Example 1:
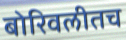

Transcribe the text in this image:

बोरिवलीतच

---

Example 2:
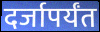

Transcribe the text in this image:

दर्जापर्यंत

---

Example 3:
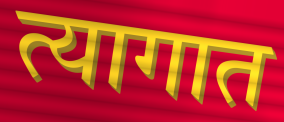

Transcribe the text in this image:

त्यागात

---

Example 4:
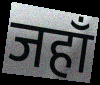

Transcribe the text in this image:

जहाँ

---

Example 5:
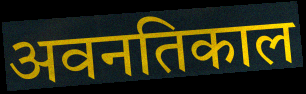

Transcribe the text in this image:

अवनतिकाल